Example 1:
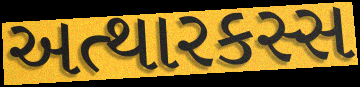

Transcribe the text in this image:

અત્થારકસ્સ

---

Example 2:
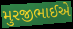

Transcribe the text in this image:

મુરજીભાઈએ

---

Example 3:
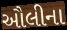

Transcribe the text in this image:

ઔલીના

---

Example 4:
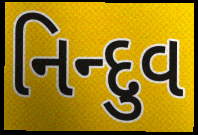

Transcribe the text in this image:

નિન્દુવ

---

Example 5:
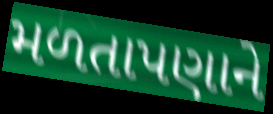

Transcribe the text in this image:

મળતાપણાને